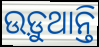
ଉଡ଼ୁଥାନ୍ତି